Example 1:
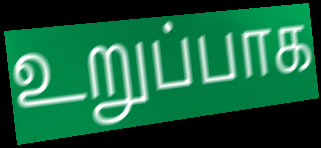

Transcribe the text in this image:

உறுப்பாக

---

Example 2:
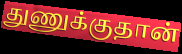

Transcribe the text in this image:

துணுக்குதான்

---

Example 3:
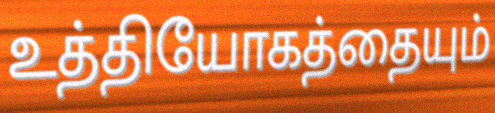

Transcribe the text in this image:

உத்தியோகத்தையும்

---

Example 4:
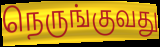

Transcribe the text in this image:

நெருங்குவது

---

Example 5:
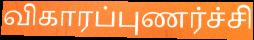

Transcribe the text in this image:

விகாரப்புணர்ச்சி